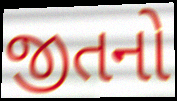
જીતનો